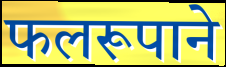
फलरूपाने